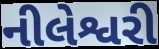
નીલેશ્વરી